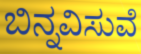
ಬಿನ್ನವಿಸುವೆ